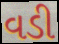
વડી